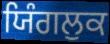
ਯਿੰਗਲੁਕ